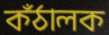
কঁঠালক